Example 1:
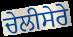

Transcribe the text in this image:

ਚੇਲੀਸੇਰੇ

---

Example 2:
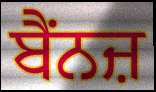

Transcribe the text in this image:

ਬੈਂਨਜ਼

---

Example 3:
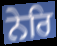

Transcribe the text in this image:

ਨੇਰਿ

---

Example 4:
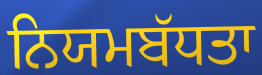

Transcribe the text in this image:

ਨਿਯਮਬੱਧਤਾ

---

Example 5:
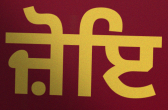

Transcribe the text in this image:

ਜ਼ੋਇ